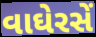
વાઘેરસેં